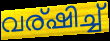
വര്ഷിച്ച്